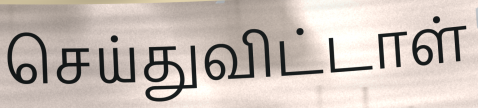
செய்துவிட்டாள்